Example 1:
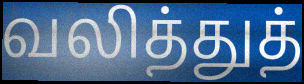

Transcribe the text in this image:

வலித்துத்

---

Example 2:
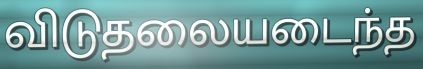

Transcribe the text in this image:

விடுதலையடைந்த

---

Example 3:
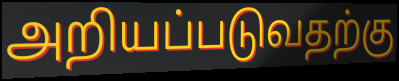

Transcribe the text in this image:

அறியப்படுவதற்கு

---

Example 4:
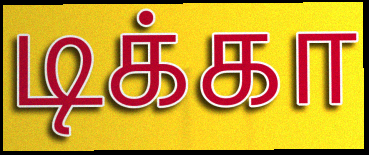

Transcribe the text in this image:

டிக்கா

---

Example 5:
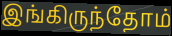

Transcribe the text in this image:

இங்கிருந்தோம்